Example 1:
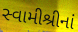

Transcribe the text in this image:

સ્વામીશ્રીનાં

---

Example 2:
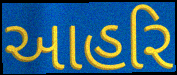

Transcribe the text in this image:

આહરિ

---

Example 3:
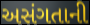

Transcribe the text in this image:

અસંગતાની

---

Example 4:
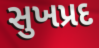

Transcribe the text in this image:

સુખપ્રદ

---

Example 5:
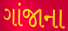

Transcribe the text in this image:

ગાંજાના